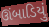
ઊંબાડિયું